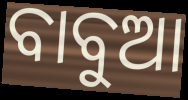
ବାବୁଆ